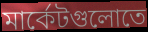
মার্কেটগুলোতে